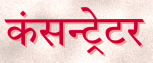
कंसन्ट्रेटर